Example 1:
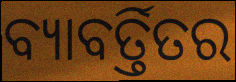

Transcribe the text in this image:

ବ୍ୟାବର୍ତ୍ତିତର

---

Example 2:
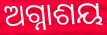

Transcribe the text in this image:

ଅଗ୍ନାଶୟ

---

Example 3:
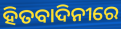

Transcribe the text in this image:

ହିତବାଦିନୀରେ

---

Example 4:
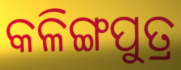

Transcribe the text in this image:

କଳିଙ୍ଗପୁତ୍ର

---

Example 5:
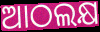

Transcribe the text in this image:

ଆଠଲକ୍ଷ